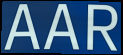
AAR